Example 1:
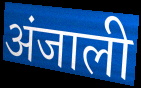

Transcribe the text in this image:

अंजाली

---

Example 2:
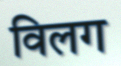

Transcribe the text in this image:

विलग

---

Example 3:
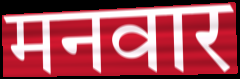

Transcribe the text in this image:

मनवार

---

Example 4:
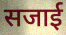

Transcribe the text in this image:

सजाई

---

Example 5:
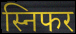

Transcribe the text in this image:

स्निफर